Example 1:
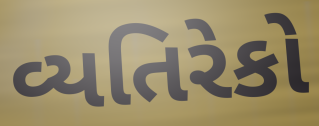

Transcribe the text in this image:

વ્યતિરેકો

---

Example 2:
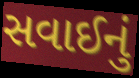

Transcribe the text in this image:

સવાઈનું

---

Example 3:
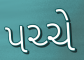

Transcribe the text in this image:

પચ્ચે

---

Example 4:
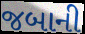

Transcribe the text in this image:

જબાની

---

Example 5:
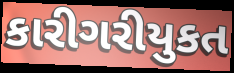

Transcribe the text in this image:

કારીગરીયુકત